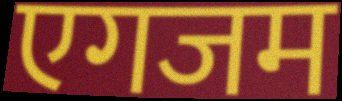
एगजम